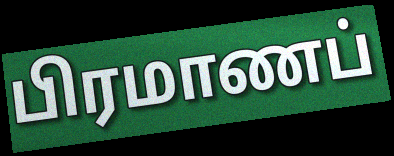
பிரமாணப்